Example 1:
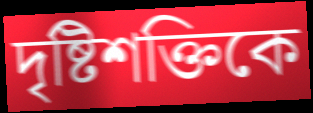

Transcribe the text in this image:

দৃষ্টিশক্তিকে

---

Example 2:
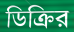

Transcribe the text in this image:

ডিক্রির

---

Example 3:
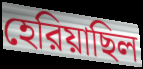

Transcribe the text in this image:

হেরিয়াছিল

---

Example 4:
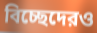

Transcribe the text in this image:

বিচ্ছেদেরও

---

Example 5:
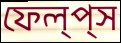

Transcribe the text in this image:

ফেল্‌প্‌স